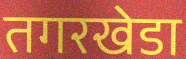
तगरखेडा